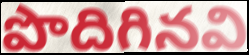
పొదిగినవి